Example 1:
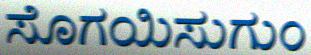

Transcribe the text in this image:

ಸೊಗಯಿಸುಗುಂ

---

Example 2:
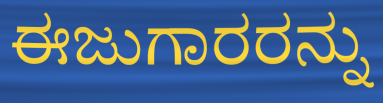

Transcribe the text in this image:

ಈಜುಗಾರರನ್ನು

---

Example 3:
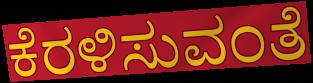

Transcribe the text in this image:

ಕೆರಳಿಸುವಂತೆ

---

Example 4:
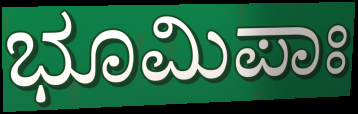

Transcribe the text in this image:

ಭೂಮಿಪಾಃ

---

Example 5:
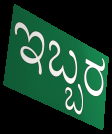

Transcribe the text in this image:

ಇಬ್ಬರ